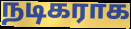
நடிகராக